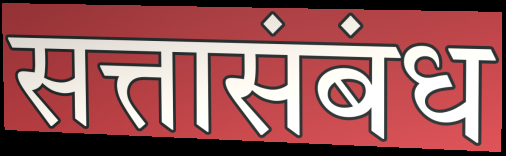
सत्तासंबंध